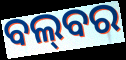
ବଲ୍‌ବର